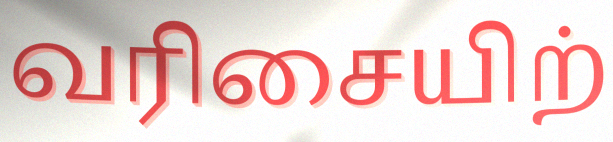
வரிசையிற்